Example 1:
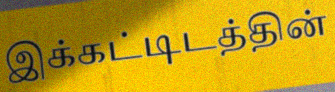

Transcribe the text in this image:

இக்கட்டிடத்தின்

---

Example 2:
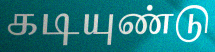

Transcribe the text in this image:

கடியுண்டு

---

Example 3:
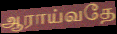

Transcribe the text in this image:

ஆராய்வதே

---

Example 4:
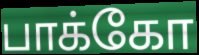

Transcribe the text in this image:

பாக்கோ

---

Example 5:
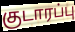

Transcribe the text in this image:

குடாரப்பு